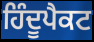
ਹਿੰਦੂਪੈਕਟ